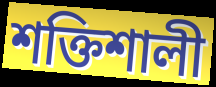
শক্তিশালী